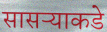
सासऱ्याकडे